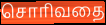
சொரிவதை